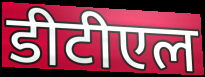
डीटीएल